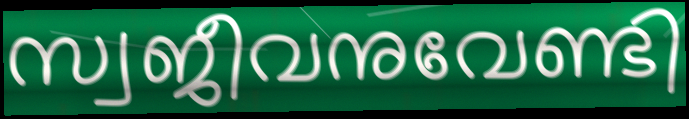
സ്വജീവനുവേണ്ടി